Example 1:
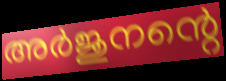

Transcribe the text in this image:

അർജുനന്റെ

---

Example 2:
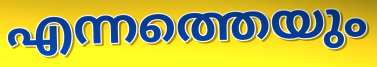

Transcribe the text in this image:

എന്നത്തെയും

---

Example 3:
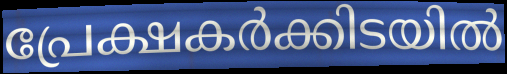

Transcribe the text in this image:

പ്രേക്ഷകർക്കിടയിൽ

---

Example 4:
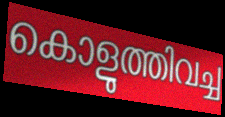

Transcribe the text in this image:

കൊളുത്തിവച്ച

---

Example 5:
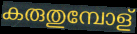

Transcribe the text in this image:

കരുതുമ്പോള്